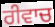
ਰੀਵਾਚ